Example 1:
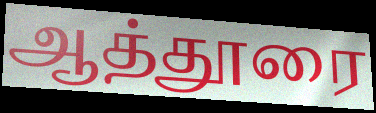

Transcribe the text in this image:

ஆத்தூரை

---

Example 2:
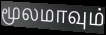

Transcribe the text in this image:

மூலமாவும்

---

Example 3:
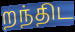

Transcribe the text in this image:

றந்திட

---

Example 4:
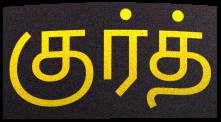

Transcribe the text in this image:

குர்த்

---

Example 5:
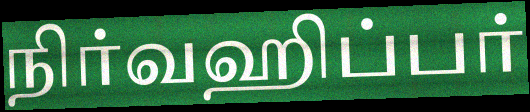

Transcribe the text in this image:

நிர்வஹிப்பர்